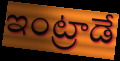
ఇంట్రాడే